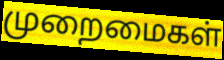
முறைமைகள்